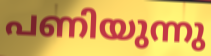
പണിയുന്നു